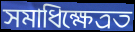
সমাধিক্ষেত্ৰত